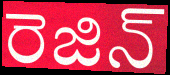
రెజిన్